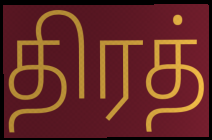
திரத்